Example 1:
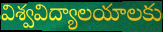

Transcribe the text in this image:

విశ్వవిద్యాలయాలకు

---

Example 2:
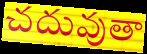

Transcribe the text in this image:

చదువుతా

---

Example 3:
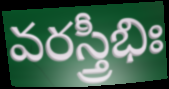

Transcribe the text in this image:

వరస్త్రీభిః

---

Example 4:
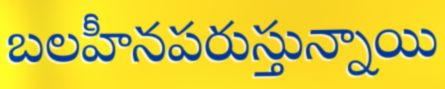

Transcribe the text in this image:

బలహీనపరుస్తున్నాయి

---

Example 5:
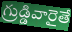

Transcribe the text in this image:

గ్రుడ్డివారైతే